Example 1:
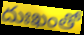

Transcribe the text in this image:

దుఃఖంతో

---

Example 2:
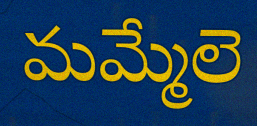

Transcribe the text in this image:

మమ్మేలె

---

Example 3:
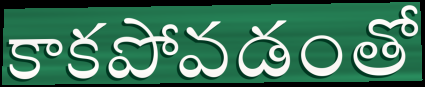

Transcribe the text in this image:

కాకపోవడంతో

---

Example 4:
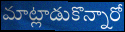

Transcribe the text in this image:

మాట్లాడుకొన్నారో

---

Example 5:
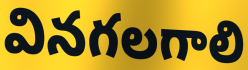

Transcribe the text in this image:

వినగలగాలి